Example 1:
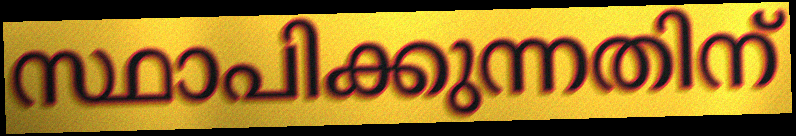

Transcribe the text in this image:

സ്ഥാപിക്കുന്നതിന്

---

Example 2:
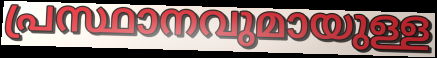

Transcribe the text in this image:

പ്രസ്ഥാനവുമായുള്ള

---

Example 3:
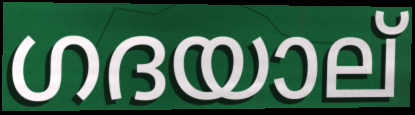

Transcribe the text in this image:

ഗദയാല്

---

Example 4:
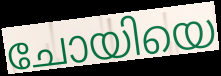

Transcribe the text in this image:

ചോയിയെ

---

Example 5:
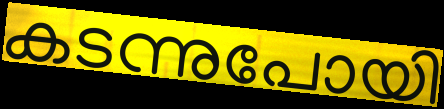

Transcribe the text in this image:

കടന്നുപോയി